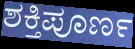
ಶಕ್ತಿಪೂರ್ಣ